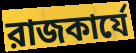
রাজকার্যে